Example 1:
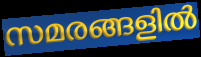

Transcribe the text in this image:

സമരങ്ങളിൽ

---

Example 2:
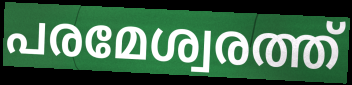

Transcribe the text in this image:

പരമേശ്വരത്ത്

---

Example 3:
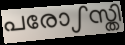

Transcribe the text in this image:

പരോഽസ്തി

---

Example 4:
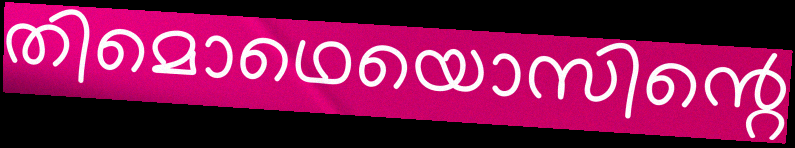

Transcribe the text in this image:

തിമൊഥെയൊസിന്റെ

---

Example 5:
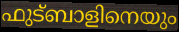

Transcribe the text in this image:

ഫുട്ബാളിനെയും